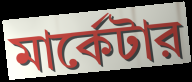
মার্কেটার